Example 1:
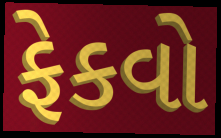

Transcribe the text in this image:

ફેકવો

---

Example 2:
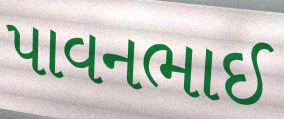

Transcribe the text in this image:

પાવનભાઈ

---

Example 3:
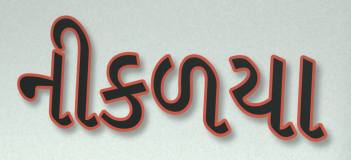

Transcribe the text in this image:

નીકળયા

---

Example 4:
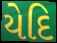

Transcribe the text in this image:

યેદિ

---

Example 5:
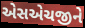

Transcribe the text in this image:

એસએચજીને